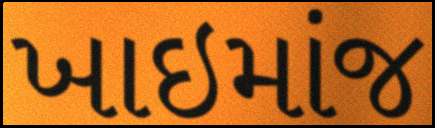
ખાઇમાંજ